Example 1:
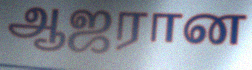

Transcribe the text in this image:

ஆஜரான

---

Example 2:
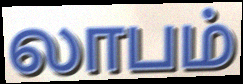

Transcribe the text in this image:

லாபம்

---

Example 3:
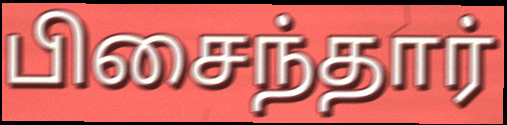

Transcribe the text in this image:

பிசைந்தார்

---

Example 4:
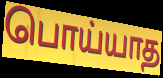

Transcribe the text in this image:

பொய்யாத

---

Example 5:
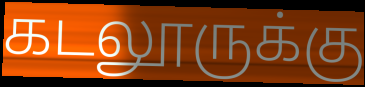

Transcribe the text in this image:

கடலூருக்கு